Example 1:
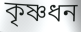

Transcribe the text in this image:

কৃষ্ণধন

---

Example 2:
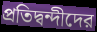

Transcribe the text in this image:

প্রতিদ্বন্দীদের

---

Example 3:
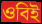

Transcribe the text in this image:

ওবিই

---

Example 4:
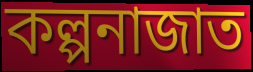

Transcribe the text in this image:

কল্পনাজাত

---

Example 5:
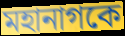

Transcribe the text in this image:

মহানাগকে